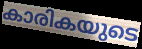
കാരികയുടെ